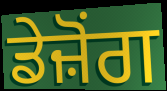
ਡੇਜ਼ੋਂਗ